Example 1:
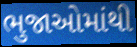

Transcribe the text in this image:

ભુજાઓમાંથી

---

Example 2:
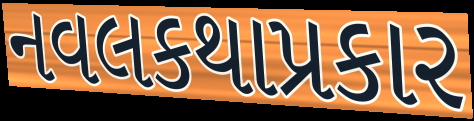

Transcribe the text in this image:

નવલકથાપ્રકાર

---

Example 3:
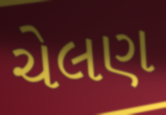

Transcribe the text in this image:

ચેલણ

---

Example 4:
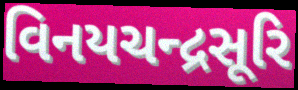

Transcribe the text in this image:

વિનયચન્દ્રસૂરિ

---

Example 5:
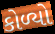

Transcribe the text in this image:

કોળ્યો